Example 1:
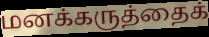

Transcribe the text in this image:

மனக்கருத்தைக்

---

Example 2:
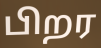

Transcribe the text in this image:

பிறர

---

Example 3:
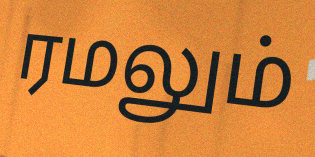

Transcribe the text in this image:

ரமலும்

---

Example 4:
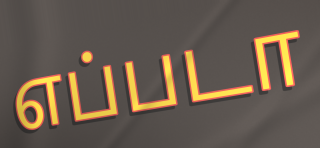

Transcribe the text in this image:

எப்படா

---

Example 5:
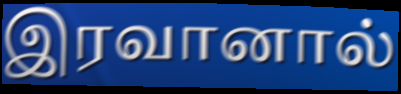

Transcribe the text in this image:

இரவானால்